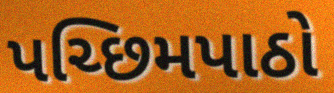
પચ્છિમપાઠો